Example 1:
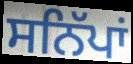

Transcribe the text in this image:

ਸਨਿੱਪਾਂ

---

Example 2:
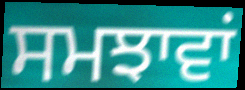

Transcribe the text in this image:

ਸਮਝਾਵਾਂ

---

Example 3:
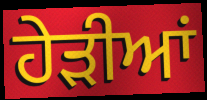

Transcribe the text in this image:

ਹੇੜੀਆਂ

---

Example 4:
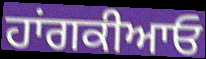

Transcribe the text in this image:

ਹਾਂਗਕੀਆਓ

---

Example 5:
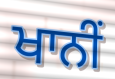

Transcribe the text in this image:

ਖਾਨੀਂ